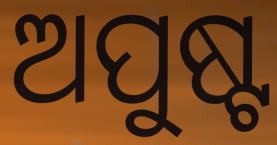
ଅପୁଷ୍ଟ